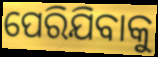
ପେରିଯିବାକୁ